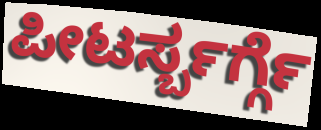
ಪೀಟರ್ಸ್ಬರ್ಗ್ಗೆ